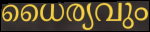
ധൈര്യവും